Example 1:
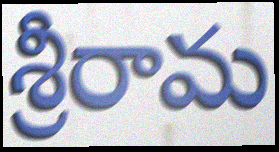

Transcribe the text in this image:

శ్రీరామ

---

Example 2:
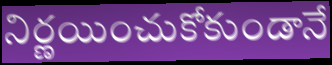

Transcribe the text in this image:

నిర్ణయించుకోకుండానే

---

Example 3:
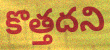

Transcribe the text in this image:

కొత్తదని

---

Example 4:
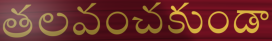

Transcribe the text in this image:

తలవంచకుండా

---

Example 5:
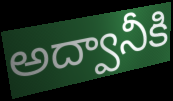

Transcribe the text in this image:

అద్వానీకి